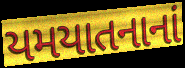
યમયાતનાનાં